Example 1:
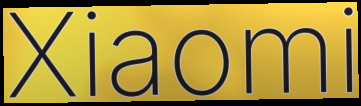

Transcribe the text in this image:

Xiaomi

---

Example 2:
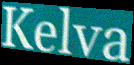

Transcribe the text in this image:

Kelva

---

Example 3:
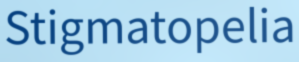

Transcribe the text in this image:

Stigmatopelia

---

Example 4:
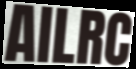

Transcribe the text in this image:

AILRC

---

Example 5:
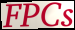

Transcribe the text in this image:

FPCs